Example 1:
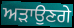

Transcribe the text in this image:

ਅੜਾਉਣਗੇ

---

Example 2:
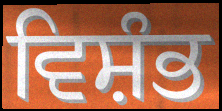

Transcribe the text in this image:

ਵਿਸ਼ੰਭ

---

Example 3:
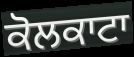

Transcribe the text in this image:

ਕੋਲਕਾਟਾ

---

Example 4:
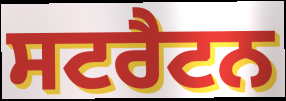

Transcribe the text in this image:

ਸਟਰੈਟਨ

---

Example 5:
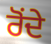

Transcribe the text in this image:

ਰੋਂਦੇ